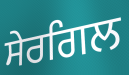
ਸੇਰਗਿਲ